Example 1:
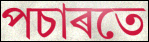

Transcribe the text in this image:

পচাৰতে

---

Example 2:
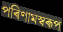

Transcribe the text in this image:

পৰিণামস্বৰূপ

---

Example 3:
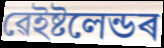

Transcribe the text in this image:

ৱেইষ্টলেন্ডৰ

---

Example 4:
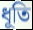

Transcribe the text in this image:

ধূতি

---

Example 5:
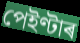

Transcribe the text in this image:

পেইণ্টাৰ